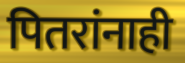
पितरांनाही